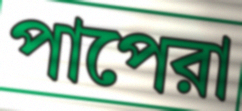
পাপেরা